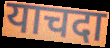
याचदा